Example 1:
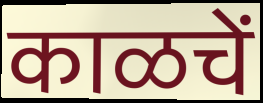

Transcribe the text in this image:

काळचें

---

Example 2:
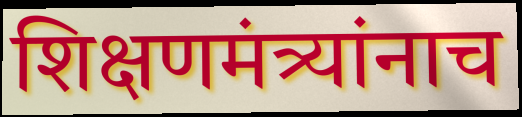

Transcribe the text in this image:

शिक्षणमंत्र्यांनाच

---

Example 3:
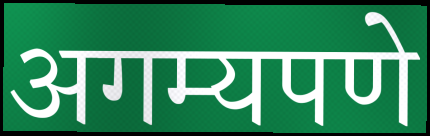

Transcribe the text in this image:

अगम्यपणे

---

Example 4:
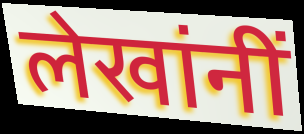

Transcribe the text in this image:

लेखांनीं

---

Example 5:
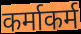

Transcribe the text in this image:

कर्माकर्म